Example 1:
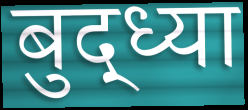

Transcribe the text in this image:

बुद्ध्या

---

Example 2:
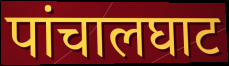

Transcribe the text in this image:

पांचालघाट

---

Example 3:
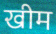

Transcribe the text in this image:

खीम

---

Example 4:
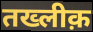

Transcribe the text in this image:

तख्लीक़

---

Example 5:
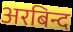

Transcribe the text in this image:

अरबिन्द